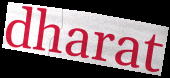
dharat